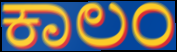
ಕಾಲಂ